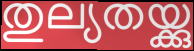
തുല്യതയ്ക്കു